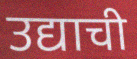
उद्याची